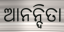
ଆନନ୍ଦିତା